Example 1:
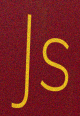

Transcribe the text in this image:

Js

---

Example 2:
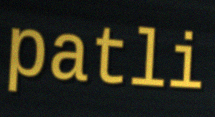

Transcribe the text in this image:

patli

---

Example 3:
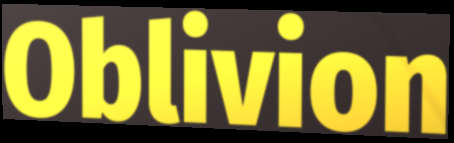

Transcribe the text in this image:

Oblivion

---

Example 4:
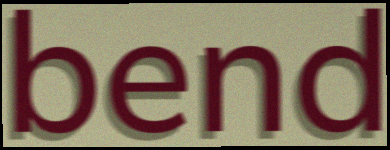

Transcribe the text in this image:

bend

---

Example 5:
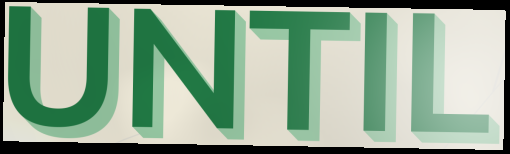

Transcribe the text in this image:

UNTIL